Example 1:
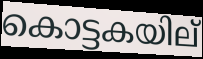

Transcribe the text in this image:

കൊട്ടകയില്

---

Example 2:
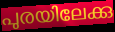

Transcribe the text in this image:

പുരയിലേക്കു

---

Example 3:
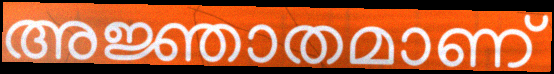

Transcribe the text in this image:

അജ്ഞാതമാണ്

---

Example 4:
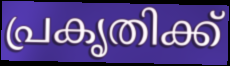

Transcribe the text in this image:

പ്രകൃതിക്ക്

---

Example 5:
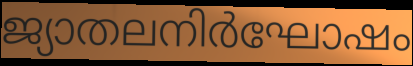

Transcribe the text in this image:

ജ്യാതലനിർഘോഷം